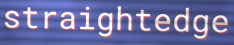
straightedge